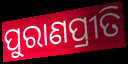
ପୁରାଣପ୍ରୀତି